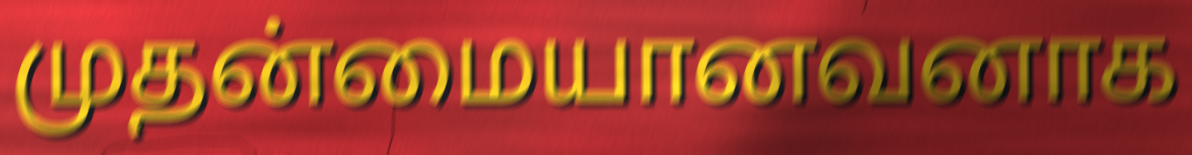
முதன்மையானவனாக